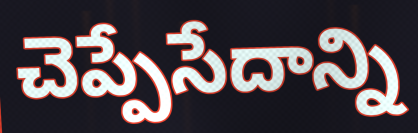
చెప్పేసేదాన్ని